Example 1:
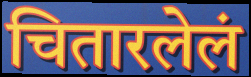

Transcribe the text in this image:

चितारलेलं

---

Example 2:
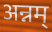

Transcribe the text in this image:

अन्नम्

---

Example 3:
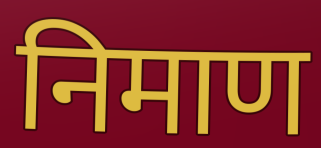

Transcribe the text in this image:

निमाण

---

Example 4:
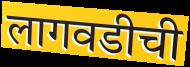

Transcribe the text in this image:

लागवडीची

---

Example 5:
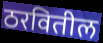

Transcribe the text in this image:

ठरवितील